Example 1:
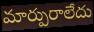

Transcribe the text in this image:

మార్పురాలేదు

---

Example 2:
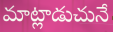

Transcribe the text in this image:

మాట్లాడుచునే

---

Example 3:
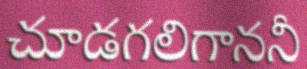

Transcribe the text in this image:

చూడగలిగాననీ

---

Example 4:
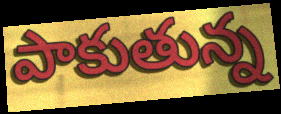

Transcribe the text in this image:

పాకుతున్న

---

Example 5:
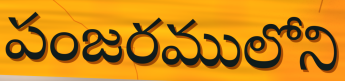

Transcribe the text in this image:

పంజరములోని